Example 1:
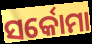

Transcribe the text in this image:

ସର୍କୋମା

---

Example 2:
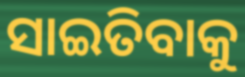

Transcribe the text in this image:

ସାଇତିବାକୁ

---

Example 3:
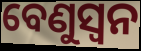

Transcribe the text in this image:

ବେଣୁସ୍ଵନ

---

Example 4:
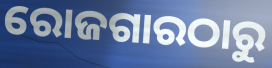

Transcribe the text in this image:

ରୋଜଗାରଠାରୁ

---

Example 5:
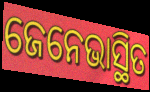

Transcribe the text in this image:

ଜେନେଭାସ୍ଥିତ